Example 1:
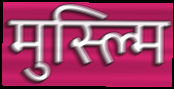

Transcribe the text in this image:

मुस्ल्मि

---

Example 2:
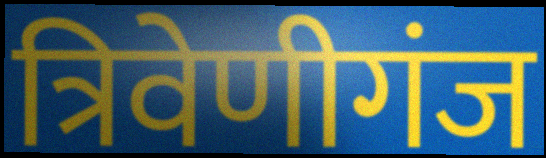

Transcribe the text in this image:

त्रिवेणीगंज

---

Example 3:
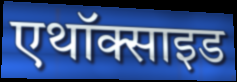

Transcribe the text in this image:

एथॉक्साइड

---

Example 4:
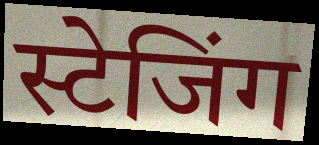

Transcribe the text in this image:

स्टेजिंग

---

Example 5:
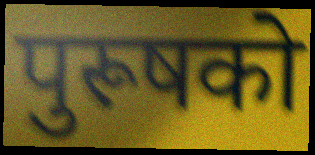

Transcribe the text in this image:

पुरूषको